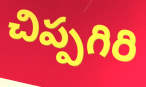
చిప్పగిరి